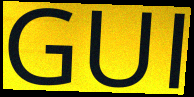
GUI